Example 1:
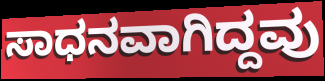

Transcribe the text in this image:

ಸಾಧನವಾಗಿದ್ದವು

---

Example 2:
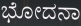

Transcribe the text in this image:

ಭೋದನಾ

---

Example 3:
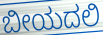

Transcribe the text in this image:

ಬೀಯದಲಿ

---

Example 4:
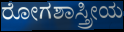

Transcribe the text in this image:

ರೋಗಶಾಸ್ತ್ರೀಯ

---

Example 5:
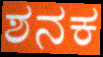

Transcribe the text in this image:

ಶನಕ